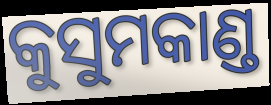
କୁସୁମକାଣ୍ଡ